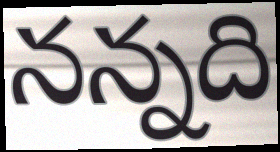
నన్నది